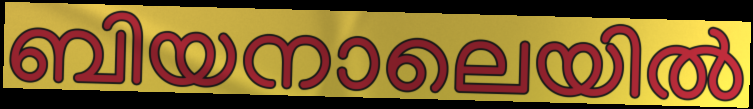
ബിയനാലെയിൽ